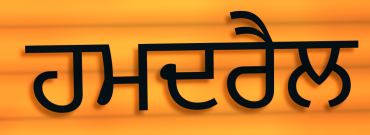
ਹਮਦਰੈਲ